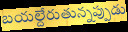
బయల్దేరుతున్నప్పుడు